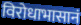
विरोधाभासानं